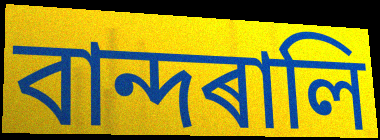
বান্দৰালি